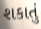
શકાતું